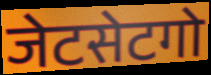
जेटसेटगो